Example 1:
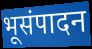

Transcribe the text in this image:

भूसंपादन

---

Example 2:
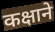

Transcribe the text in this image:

कक्षाने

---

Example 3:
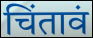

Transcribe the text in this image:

चिंतावं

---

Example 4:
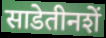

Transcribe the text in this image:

साडेतीनशें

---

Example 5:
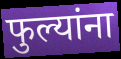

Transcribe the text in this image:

फुल्यांना